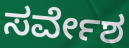
ಸರ್ವೇಶ